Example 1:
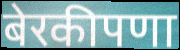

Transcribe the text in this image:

बेरकीपणा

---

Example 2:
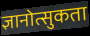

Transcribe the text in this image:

ज्ञानोत्सुकता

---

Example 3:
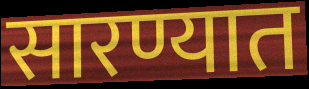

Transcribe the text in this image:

सारण्यात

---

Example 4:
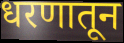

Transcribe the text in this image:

धरणातून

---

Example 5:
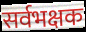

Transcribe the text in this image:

सर्वभक्षक